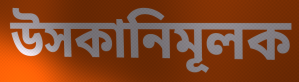
উসকানিমূলক